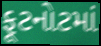
ફૂટનોટમાં